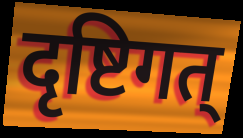
दृष्टिगत्